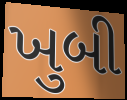
ખુબી